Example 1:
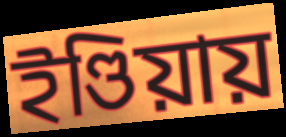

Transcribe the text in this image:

ইণ্ডিয়ায়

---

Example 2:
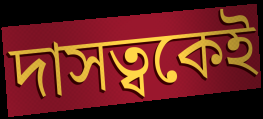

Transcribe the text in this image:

দাসত্বকেই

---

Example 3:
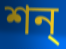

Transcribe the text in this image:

শন্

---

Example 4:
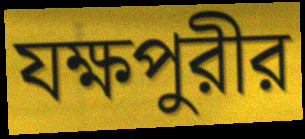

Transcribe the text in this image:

যক্ষপুরীর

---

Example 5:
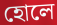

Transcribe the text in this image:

হোলে